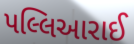
પલ્લિઆરાઈ